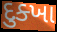
દુક્ખા